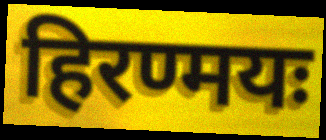
हिरण्मयः